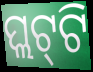
ପ୍ଲଟ୍‌ଟି